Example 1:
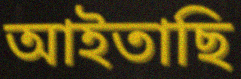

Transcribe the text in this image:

আইতাছি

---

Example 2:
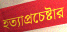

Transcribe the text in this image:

হত্যাপ্রচেষ্টার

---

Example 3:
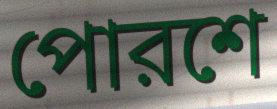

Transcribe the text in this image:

পোরশে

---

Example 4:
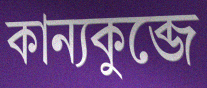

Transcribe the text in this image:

কান্যকুব্জে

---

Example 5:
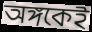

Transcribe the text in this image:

অঙ্গকেই